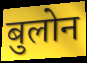
बुलोन